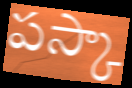
పస్కా